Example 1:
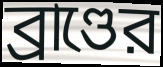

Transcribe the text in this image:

ব্রাণ্ডের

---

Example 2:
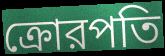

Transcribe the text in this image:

ক্রোরপতি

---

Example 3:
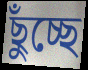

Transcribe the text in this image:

ছুঁচ্ছে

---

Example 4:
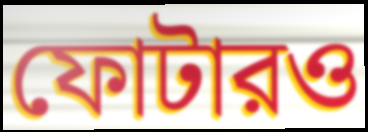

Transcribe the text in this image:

ফোটারও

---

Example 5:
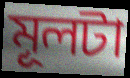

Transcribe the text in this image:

মূলটা